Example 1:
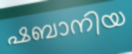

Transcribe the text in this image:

ഷബാനിയ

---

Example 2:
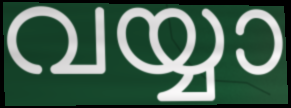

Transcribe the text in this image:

വയ്യാ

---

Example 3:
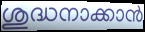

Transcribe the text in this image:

ശുദ്ധനാക്കാൻ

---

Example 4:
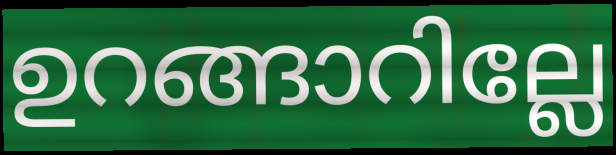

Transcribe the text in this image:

ഉറങ്ങാറില്ലേ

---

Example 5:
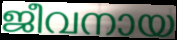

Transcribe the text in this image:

ജീവനായ